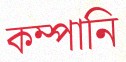
কম্পানি